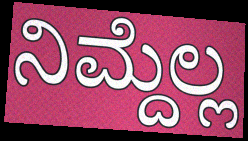
ನಿಮ್ದೆಲ್ಲ